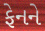
ફેનને